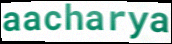
aacharya